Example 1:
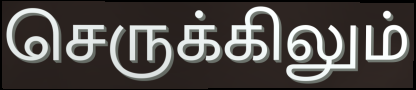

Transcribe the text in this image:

செருக்கிலும்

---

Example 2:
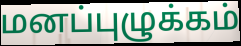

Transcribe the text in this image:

மனப்புழுக்கம்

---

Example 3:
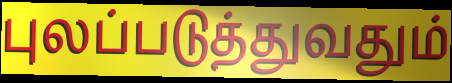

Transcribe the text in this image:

புலப்படுத்துவதும்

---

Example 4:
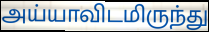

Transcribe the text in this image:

அய்யாவிடமிருந்து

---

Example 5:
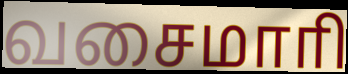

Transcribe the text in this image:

வசைமாரி